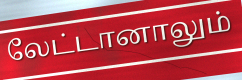
லேட்டானாலும்